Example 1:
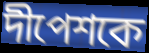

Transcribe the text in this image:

দীপেশকে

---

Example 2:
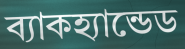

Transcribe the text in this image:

ব্যাকহ্যান্ডেড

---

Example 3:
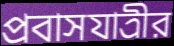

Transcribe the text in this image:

প্রবাসযাত্রীর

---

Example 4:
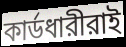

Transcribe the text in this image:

কার্ডধারীরাই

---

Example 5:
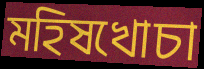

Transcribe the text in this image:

মহিষখোচা